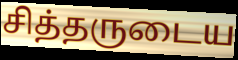
சித்தருடைய